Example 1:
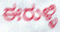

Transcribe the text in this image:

ಈರುಳ್ಳಿ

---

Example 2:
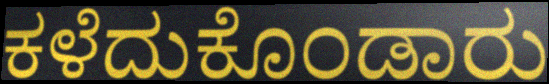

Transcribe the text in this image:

ಕಳೆದುಕೊಂಡಾರು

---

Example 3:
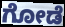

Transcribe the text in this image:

ಗೋಡೆ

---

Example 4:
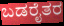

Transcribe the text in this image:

ಬಡರೈತರ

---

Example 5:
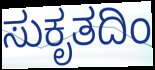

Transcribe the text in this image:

ಸುಕೃತದಿಂ